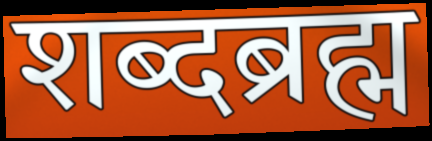
शब्दब्रह्म